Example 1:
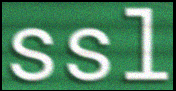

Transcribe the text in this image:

ssl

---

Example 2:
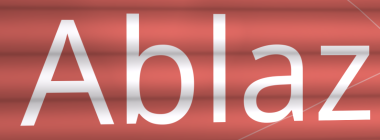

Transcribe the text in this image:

Ablaz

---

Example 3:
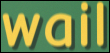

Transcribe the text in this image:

wail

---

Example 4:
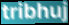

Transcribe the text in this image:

tribhuj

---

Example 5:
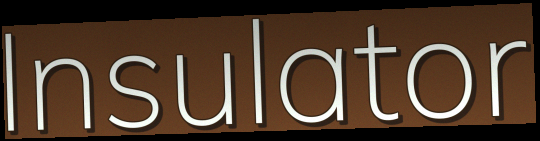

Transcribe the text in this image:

Insulator